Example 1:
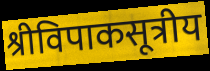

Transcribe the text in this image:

श्रीविपाकसूत्रीय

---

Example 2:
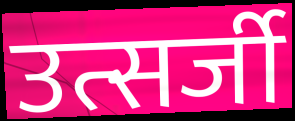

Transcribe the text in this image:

उत्सर्जी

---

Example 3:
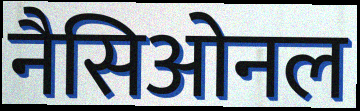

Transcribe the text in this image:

नैसिओनल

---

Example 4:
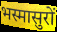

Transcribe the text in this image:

भस्मासुरों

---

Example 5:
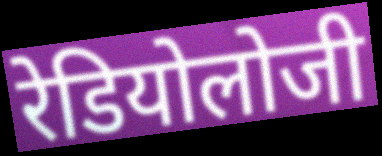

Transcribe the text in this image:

रेडियोलोजी